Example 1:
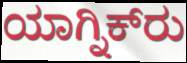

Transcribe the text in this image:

ಯಾಗ್ನಿಕ್‍ರು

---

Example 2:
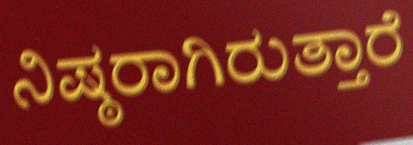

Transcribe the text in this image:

ನಿಷ್ಠರಾಗಿರುತ್ತಾರೆ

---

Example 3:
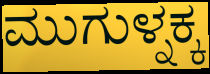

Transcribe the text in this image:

ಮುಗುಳ್ನಕ್ಕ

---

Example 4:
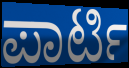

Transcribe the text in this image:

ಪಾರ್ಟಿ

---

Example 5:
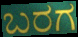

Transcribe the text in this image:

ಬರಗ